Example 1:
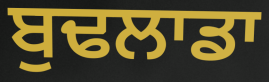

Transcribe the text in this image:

ਬੁਢਲਾਡਾ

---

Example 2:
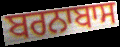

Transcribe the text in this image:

ਬਰਨਾਬਾਸ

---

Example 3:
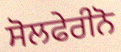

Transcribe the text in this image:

ਸੋਲਫੇਰੀਨੋ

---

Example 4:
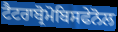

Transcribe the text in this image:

ਟੈਟਰਾਬ੍ਰੋਮੋਬਿਸਫੇਨੋਲ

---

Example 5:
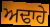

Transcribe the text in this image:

ਅਢਾਹੇ